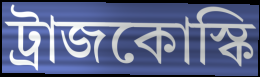
ট্রাজকোস্কি